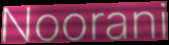
Noorani